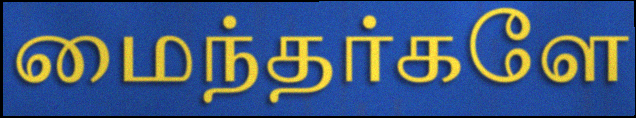
மைந்தர்களே